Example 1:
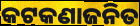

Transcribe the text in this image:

କଟକଣାଜନିତ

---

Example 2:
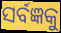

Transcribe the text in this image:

ସର୍ବଜ୍ଞକୁ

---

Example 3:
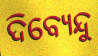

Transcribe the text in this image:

ଦିବ୍ୟେନ୍ଦୁ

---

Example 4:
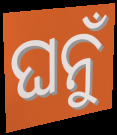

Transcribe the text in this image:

ଘନୁଁ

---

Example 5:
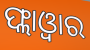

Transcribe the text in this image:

ଫ୍ଲାଓ୍ବାର